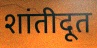
शांतीदूत